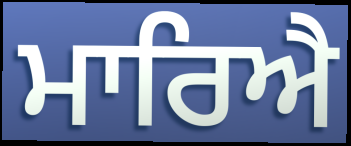
ਮਾਰਿਐ